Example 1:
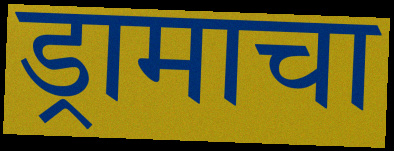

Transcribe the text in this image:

ड्रामाचा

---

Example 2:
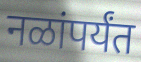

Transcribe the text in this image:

नळांपर्यंत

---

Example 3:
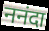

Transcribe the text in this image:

ननंदा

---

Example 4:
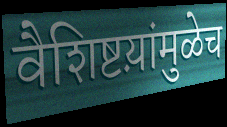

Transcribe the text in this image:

वैशिष्टय़ांमुळेच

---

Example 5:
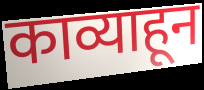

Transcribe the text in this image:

काव्याहून